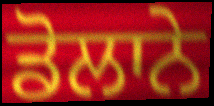
ਡੋਲਾਨੇ